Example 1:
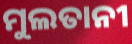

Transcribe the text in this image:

ମୁଲତାନୀ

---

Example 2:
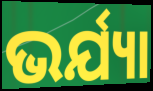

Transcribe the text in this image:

ଭର୍ଯ୍ୟା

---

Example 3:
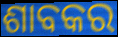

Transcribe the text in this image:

ଶାବକର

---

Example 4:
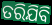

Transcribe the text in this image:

ତରିଯିବି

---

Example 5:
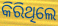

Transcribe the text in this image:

କିରିଥିଲେ